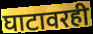
घाटावरही